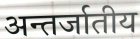
अन्तर्जातीय